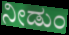
ನೀಡುಂ